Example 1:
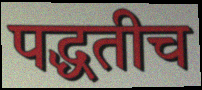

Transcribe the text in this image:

पद्धतीच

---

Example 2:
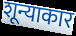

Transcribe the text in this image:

शून्याकार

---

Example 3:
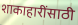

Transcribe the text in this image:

शाकाहारींसाठी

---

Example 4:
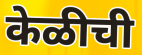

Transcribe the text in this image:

केळीची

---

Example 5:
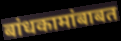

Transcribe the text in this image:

बांधकामांबाबत